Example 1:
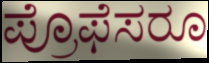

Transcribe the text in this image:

ಪ್ರೊಫೆಸರೂ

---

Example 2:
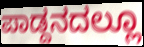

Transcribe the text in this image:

ಪಾಡ್ದನದಲ್ಲೂ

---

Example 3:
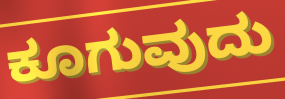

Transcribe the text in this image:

ಕೂಗುವುದು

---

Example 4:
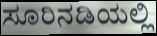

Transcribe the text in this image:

ಸೂರಿನಡಿಯಲ್ಲಿ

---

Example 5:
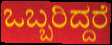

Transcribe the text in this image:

ಒಬ್ಬರಿದ್ದರೆ